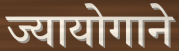
ज्यायोगाने